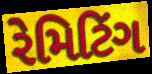
રેમિટિંગ